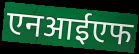
एनआईएफ